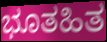
ಭೂತಹಿತ